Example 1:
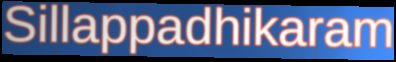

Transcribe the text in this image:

Sillappadhikaram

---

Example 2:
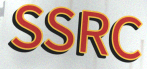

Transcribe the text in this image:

SSRC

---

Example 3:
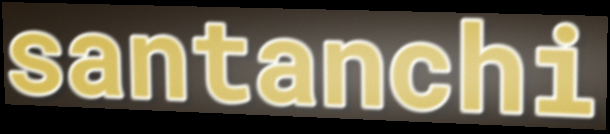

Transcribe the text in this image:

santanchi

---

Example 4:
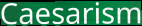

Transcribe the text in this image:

Caesarism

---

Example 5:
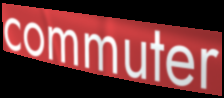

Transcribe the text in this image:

commuter